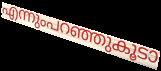
എന്നുംപറഞ്ഞുകൂടാ